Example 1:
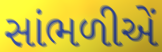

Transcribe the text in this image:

સાંભળીએં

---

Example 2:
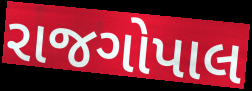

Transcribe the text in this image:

રાજગોપાલ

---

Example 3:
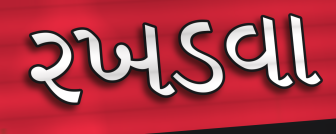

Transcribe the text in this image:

રખડવા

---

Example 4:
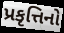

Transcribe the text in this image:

પ્રકૃત્તિનો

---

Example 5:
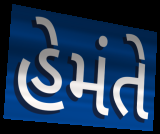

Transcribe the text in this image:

હેમંતે